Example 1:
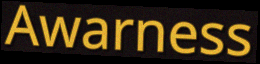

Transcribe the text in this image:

Awarness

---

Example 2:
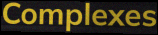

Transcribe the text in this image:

Complexes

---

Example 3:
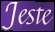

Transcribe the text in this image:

Jeste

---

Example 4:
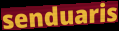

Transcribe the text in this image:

senduaris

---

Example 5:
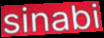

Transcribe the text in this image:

sinabi